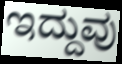
ಇದ್ದುವು